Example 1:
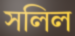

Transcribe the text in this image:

সলিল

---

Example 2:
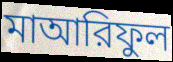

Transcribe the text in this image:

মাআরিফুল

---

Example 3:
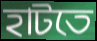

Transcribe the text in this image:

হাটতে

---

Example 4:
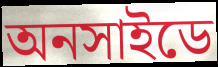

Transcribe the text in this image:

অনসাইডে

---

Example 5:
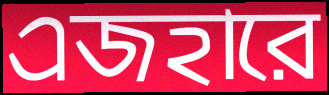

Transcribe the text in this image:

এজহারে